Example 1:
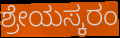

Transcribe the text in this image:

ಶ್ರೇಯಸ್ಕರಂ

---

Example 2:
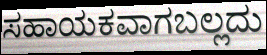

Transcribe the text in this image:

ಸಹಾಯಕವಾಗಬಲ್ಲದು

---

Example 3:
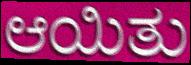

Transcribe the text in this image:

ಆಯಿತು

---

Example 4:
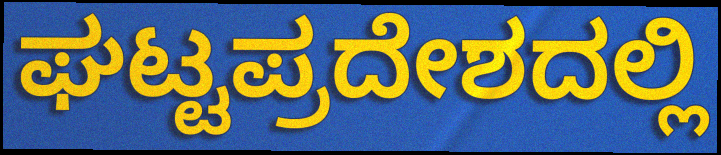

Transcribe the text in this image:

ಘಟ್ಟಪ್ರದೇಶದಲ್ಲಿ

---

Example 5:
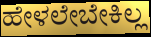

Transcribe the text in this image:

ಹೇಳಲೇಬೇಕಿಲ್ಲ